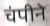
चंपीने